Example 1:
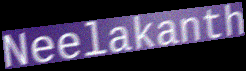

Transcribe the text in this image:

Neelakanth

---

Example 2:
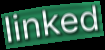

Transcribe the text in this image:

linked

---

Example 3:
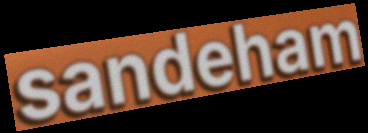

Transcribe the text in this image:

sandeham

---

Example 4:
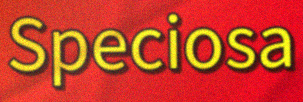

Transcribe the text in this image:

Speciosa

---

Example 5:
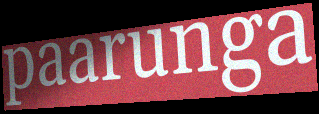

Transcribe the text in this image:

paarunga